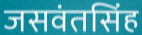
जसवंतसिंह